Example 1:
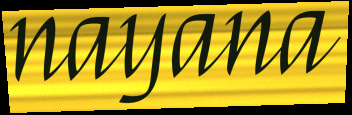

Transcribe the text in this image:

nayana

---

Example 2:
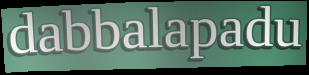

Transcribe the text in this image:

dabbalapadu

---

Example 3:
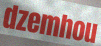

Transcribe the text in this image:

dzemhou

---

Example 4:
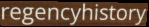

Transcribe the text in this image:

regencyhistory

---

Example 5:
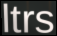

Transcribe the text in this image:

ltrs